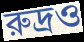
রুদ্রও